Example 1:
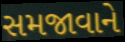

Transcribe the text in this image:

સમજાવાને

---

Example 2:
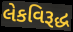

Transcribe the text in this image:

લેકવિરૂદ્ધ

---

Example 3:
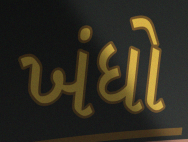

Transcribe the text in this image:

ખંધો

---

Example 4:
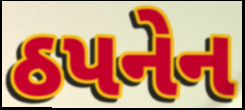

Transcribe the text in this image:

ઠપનેન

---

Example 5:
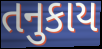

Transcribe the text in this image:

તનુકાય